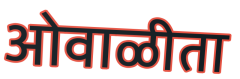
ओवाळीता